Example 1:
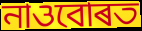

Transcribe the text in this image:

নাওবোৰত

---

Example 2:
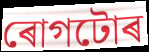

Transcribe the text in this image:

ৰোগটোৰ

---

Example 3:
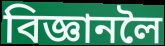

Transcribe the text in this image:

বিজ্ঞানলৈ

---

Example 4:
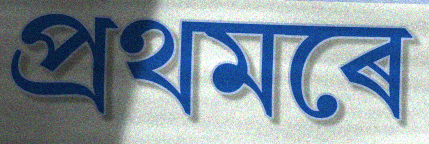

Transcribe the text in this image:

প্ৰথমৰে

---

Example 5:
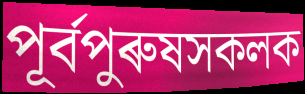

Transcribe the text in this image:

পূৰ্বপুৰুষসকলক